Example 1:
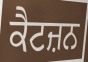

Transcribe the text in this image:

ਕੈਟਜ਼ਨ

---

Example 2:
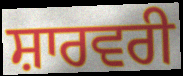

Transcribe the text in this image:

ਸ਼ਾਰਵਰੀ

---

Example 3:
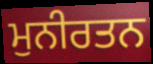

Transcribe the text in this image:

ਮੁਨੀਰਤਨ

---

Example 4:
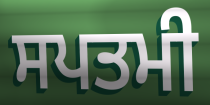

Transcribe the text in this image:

ਸਪਤਮੀ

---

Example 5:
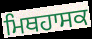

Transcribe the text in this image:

ਮਿਥਹਾਸਕ